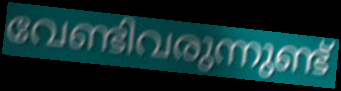
വേണ്ടിവരുന്നുണ്ട്